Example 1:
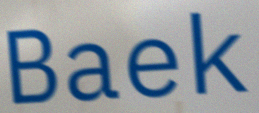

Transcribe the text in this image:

Baek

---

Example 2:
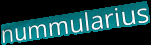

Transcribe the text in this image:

nummularius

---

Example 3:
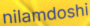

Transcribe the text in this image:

nilamdoshi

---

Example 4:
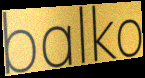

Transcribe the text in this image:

balko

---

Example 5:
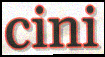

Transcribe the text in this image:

cini